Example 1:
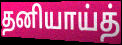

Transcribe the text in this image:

தனியாய்த்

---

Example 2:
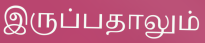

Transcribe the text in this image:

இருப்பதாலும்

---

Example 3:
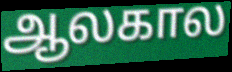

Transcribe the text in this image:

ஆலகால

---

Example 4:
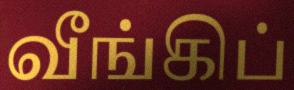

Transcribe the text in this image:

வீங்கிப்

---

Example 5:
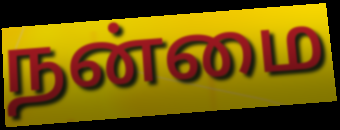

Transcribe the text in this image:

நன்மை